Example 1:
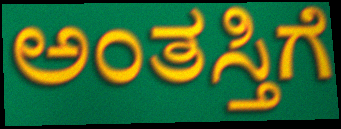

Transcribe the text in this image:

ಅಂತಸ್ತಿಗೆ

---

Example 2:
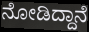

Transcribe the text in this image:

ನೋಡಿದ್ದಾನೆ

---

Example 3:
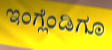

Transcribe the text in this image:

ಇಂಗ್ಲೆಂಡಿಗೂ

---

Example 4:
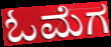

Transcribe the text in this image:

ಓಮೆಗ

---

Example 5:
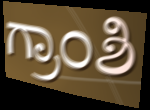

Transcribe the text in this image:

ಗ್ರಾಂಶಿ